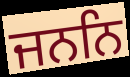
ਜਨਨਿ